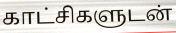
காட்சிகளுடன்